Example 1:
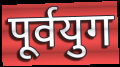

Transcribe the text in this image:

पूर्वयुग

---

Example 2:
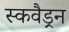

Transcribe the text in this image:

स्कवैड्रन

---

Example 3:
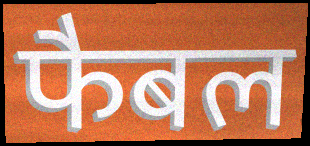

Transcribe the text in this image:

फैबल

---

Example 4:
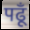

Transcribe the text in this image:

पढूँ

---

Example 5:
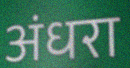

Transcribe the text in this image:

अंधरा